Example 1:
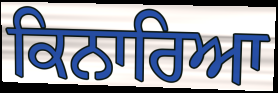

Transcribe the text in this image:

ਕਿਨਾਰਿਆ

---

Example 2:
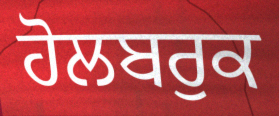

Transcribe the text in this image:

ਹੋਲਬਰੁਕ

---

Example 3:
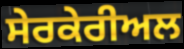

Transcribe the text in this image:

ਸੇਰਕੇਰੀਅਲ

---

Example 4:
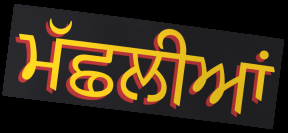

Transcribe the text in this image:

ਮੱਛਲੀਆਂ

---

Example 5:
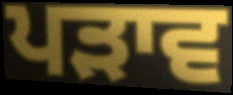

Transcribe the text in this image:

ਪੜਾਵ